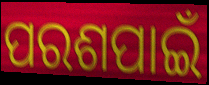
ପରଶପାଇଁ